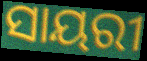
ସାୟରୀ